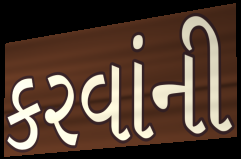
કરવાંની